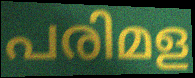
പരിമള